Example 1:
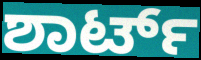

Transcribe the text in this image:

ಶಾರ್ಟ್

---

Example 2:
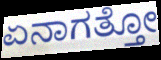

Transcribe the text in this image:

ಏನಾಗತ್ತೋ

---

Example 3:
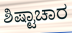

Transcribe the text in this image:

ಶಿಷ್ಟಾಚಾರ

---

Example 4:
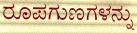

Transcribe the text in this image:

ರೂಪಗುಣಗಳನ್ನು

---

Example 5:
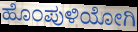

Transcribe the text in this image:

ಹೊಂಪುಳಿಯೋಗಿ